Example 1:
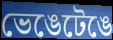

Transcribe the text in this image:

ভেঙেটেঙে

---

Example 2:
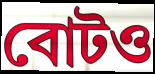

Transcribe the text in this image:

বোটও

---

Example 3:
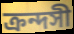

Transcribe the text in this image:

ক্রন্দসী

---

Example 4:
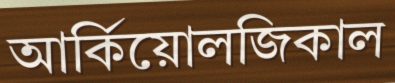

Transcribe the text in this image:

আর্কিয়োলজিকাল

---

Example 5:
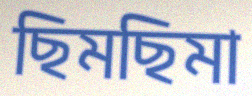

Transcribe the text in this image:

ছিমছিমা